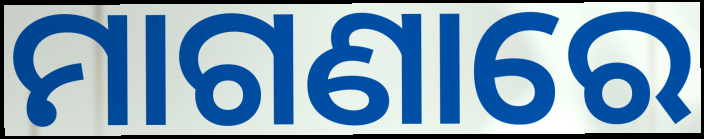
ମାଗଣାରେ